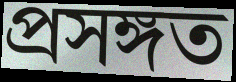
প্রসঙ্গত